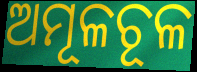
ଅମୂଳଚୂଳ